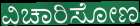
ವಿಚಾರಿಸೋಣ